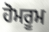
ਹੋਮਰੂਮ